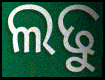
ଲଢୁ